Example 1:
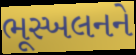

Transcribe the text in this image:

ભૂસ્ખલનને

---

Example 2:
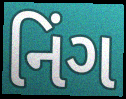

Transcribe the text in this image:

નિંગ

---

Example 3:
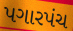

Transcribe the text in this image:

પગારપંચ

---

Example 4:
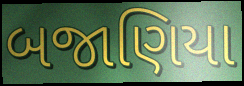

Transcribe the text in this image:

બજાણિયા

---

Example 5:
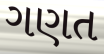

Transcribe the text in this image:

ગણત